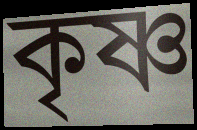
কৃষ্ণ